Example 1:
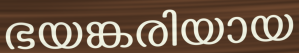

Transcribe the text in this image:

ഭയങ്കരിയായ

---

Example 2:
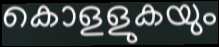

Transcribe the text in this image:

കൊളളുകയും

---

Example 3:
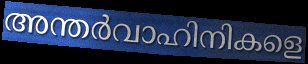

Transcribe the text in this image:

അന്തർവാഹിനികളെ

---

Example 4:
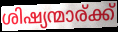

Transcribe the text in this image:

ശിഷ്യന്മാര്ക്ക്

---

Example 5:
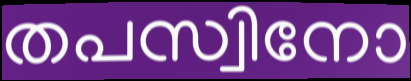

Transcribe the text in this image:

തപസ്വിനോ